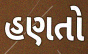
હણતો